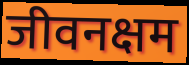
जीवनक्षम